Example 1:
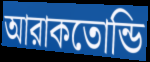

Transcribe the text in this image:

আরাকতোন্ডি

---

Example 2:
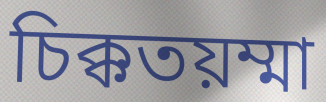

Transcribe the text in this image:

চিক্কতয়ম্মা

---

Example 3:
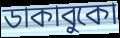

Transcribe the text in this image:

ডাকাবুকো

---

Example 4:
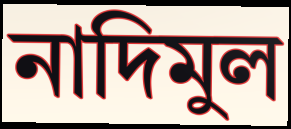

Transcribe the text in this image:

নাদিমুল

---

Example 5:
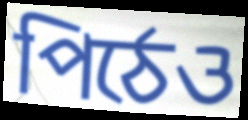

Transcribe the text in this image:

পিঠেও